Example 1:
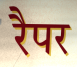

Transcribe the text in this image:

रैपर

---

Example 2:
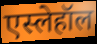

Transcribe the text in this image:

एस्लेहॉल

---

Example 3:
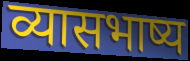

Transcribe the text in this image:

व्यासभाष्य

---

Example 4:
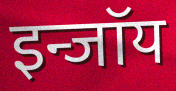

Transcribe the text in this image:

इन्जॉय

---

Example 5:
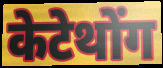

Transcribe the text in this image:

केटेथोंग